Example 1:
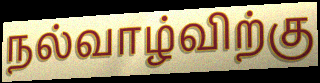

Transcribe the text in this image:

நல்வாழ்விற்கு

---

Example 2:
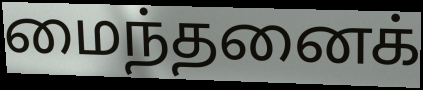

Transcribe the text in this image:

மைந்தனைக்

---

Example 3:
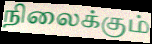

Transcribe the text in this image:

நிலைக்கும்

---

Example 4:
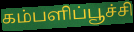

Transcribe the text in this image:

கம்பளிப்பூச்சி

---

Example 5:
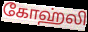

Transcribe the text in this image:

கோஹ்லி